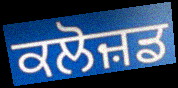
ਕਲੋਜ਼ਡ